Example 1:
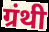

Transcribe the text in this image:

ग्रंथी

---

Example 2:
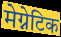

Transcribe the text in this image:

मेग्नेटिक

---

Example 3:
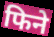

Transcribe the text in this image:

फिने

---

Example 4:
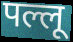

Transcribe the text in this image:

पल्लू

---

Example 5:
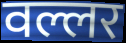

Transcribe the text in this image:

वल्लर